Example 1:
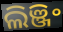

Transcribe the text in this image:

ଲିଞ୍ଜିଂ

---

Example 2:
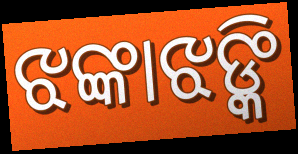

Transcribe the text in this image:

ଝଙ୍କାଝଙ୍କି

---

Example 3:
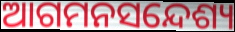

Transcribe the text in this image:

ଆଗମନସନ୍ଦେଶ୍ୟ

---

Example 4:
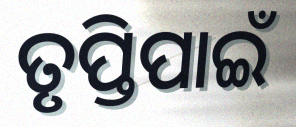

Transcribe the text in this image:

ତୃପ୍ତିପାଇଁ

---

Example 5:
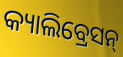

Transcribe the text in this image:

କ୍ୟାଲିବ୍ରେସନ୍